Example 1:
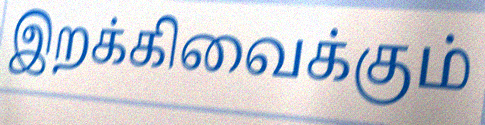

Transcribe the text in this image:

இறக்கிவைக்கும்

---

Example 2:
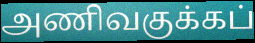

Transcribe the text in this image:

அணிவகுக்கப்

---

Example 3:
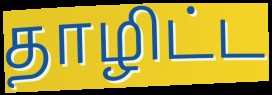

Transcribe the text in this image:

தாழிட்ட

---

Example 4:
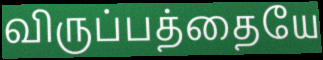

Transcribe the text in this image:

விருப்பத்தையே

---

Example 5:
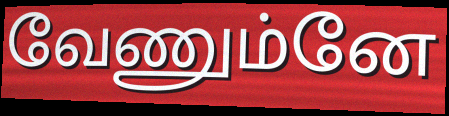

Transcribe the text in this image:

வேணும்னே